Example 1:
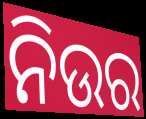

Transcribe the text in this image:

ନିଉର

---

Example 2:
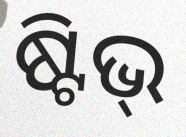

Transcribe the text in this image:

ଷ୍ଟିଭ୍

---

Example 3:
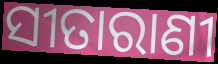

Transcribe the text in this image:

ସୀତାରାଣୀ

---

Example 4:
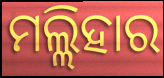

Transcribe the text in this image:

ମଲ୍ଲିହାର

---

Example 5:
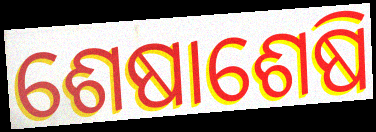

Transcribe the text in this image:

ଶେଷାଶେଷି